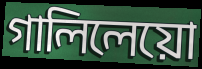
গালিলেয়ো